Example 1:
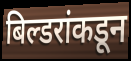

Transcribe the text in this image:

बिल्डरांकडून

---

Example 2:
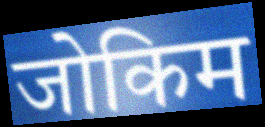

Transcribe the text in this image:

जोकिम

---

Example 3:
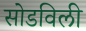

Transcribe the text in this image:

सोडविली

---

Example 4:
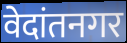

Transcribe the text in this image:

वेदांतनगर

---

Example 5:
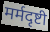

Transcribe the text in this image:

मर्मदृष्टी